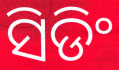
ସିଡିଂ